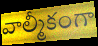
వాల్మీకంగా